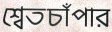
শ্বেতচাঁপার